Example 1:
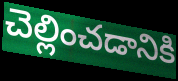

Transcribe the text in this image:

చెల్లించడానికి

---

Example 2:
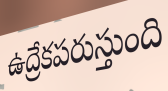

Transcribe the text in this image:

ఉద్రేకపరుస్తుంది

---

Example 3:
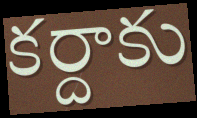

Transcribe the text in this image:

కర్దాకు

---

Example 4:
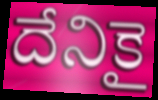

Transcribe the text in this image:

దేనికై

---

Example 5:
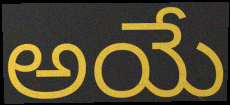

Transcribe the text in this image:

అయే